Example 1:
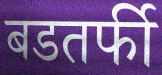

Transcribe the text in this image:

बडतर्फी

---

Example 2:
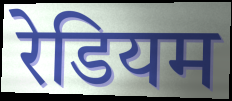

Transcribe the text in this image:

रेडियम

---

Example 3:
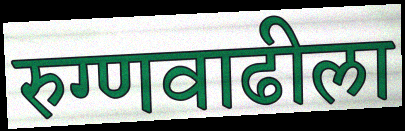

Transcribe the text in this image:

रुग्णवाढीला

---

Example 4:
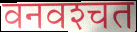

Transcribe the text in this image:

वनवश्चत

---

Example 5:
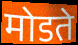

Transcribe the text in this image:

मोडते